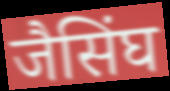
जैसिंघ